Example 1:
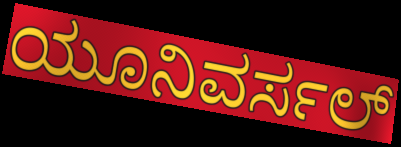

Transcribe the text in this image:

ಯೂನಿವರ್ಸಲ್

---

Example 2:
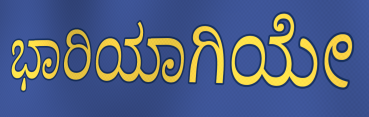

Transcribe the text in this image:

ಭಾರಿಯಾಗಿಯೇ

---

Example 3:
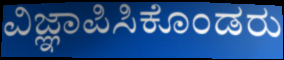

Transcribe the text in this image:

ವಿಜ್ಞಾಪಿಸಿಕೊಂಡರು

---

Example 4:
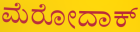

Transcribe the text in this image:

ಮೆರೋದಾಕ್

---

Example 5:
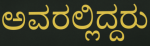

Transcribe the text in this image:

ಅವರಲ್ಲಿದ್ದರು